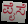
ಪೈಸೆ